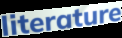
Iiterature